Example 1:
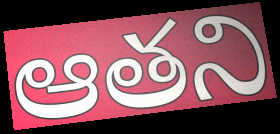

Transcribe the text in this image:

ఆతని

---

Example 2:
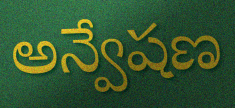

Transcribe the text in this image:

అన్వేషణ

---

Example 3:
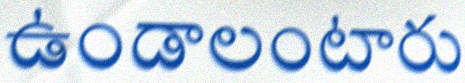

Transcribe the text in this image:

ఉండాలంటారు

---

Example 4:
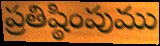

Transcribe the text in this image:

ప్రతిష్ఠింపుము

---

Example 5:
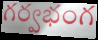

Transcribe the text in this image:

గర్వభంగ